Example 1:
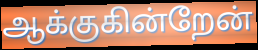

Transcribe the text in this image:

ஆக்குகின்றேன்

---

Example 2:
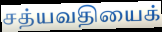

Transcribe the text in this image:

சத்யவதியைக்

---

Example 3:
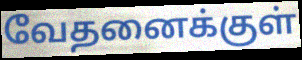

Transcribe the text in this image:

வேதனைக்குள்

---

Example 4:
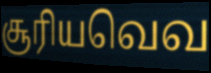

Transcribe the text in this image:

சூரியவெவ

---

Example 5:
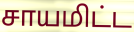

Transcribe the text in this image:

சாயமிட்ட